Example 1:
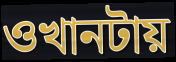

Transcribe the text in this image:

ওখানটায়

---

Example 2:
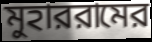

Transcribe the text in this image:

মুহাররামের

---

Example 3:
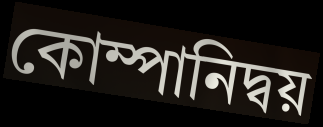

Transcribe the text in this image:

কোম্পানিদ্বয়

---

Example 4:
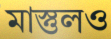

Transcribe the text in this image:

মাস্তুলও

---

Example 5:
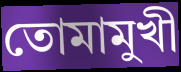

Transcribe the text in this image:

তোমামুখী